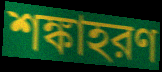
শঙ্কাহরণ